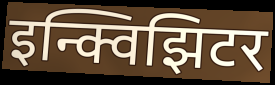
इन्क्विझिटर